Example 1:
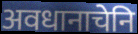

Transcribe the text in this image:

अवधानाचेनि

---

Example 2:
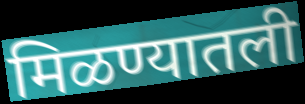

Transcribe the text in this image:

मिळण्यातली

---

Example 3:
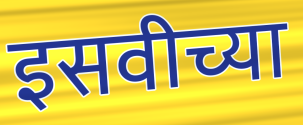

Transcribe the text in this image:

इसवीच्या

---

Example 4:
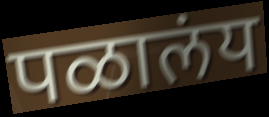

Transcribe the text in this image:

पळालंय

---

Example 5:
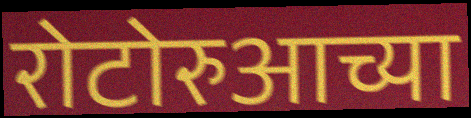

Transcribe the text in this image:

रोटोरुआच्या